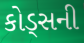
કોડ્સની